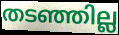
തടഞ്ഞില്ല